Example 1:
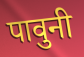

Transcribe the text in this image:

पावुनी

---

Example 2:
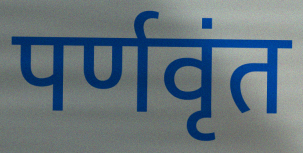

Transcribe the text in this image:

पर्णवृंत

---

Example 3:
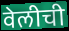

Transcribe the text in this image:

वेलीची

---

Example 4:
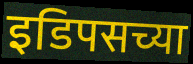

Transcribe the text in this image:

इडिपसच्या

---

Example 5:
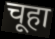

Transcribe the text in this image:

चूहा